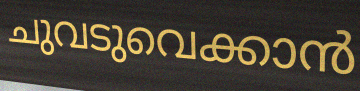
ചുവടുവെക്കാൻ